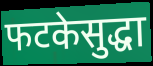
फटकेसुद्धा